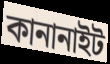
কানানাইট